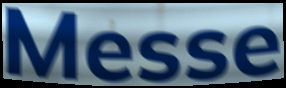
Messe